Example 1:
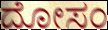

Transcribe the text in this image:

ದೋಸಂ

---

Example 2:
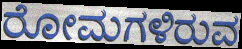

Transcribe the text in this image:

ರೋಮಗಳಿರುವ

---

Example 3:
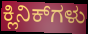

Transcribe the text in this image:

ಕ್ಲಿನಿಕ್‌ಗಳು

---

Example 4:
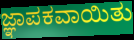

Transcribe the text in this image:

ಜ್ಞಾಪಕವಾಯಿತು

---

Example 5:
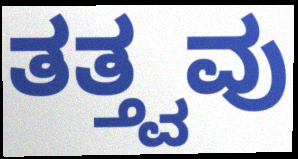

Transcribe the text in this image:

ತತ್ತ್ವವು